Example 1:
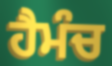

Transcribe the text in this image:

ਹੈਮੰਚ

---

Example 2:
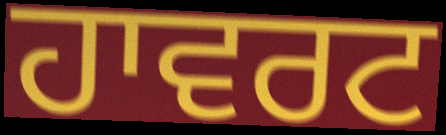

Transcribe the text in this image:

ਹਾਵਰਟ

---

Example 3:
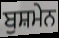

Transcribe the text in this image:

ਬੁਸ਼ਮੇਨ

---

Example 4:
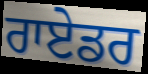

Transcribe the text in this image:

ਰਾਏਡਰ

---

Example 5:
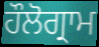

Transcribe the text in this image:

ਹੌਲੋਗ੍ਰਾਮ